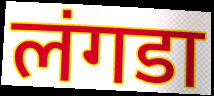
लंगडा